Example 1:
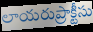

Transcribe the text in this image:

లాయరుప్రాక్టీసు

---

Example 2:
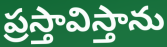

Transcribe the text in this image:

ప్రస్తావిస్తాను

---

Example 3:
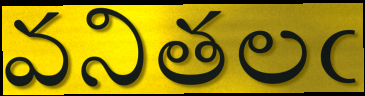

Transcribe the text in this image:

వనితలఁ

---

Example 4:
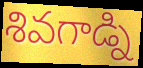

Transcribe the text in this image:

శివగాడ్ని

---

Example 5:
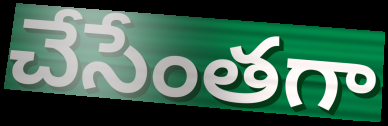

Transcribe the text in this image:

చేసేంతగా